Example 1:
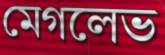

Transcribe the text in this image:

মেগলেভ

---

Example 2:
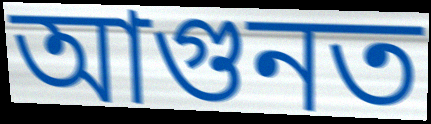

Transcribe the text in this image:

আগুনত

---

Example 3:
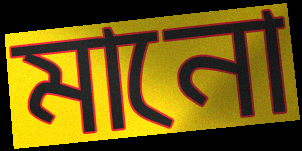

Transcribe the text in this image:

মানো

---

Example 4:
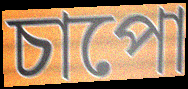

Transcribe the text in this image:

চাপো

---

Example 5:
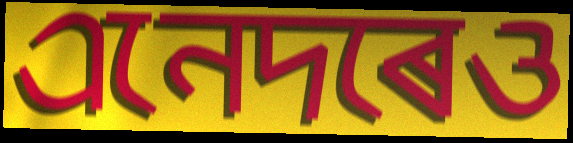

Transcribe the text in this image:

এনেদৰেও